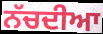
ਨੱਚਦੀਆ